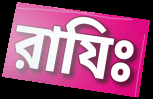
রাযিঃ